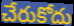
చేరుకోదు